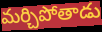
మర్చిపోతాడు